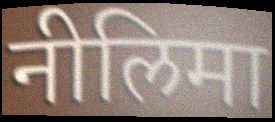
नीलिमा